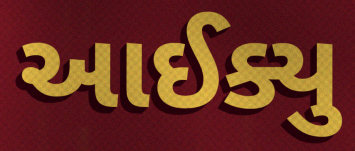
આઈક્યુ